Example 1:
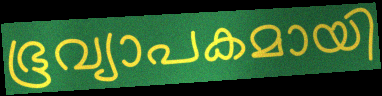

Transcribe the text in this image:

ഭൂവ്യാപകമായി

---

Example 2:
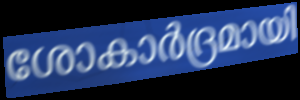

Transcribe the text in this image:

ശോകാർദ്രമായി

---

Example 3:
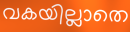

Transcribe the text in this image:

വകയില്ലാതെ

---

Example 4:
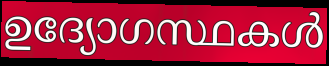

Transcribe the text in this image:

ഉദ്യോഗസ്ഥകൾ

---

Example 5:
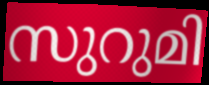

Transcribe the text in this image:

സുറുമി